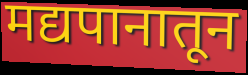
मद्यपानातून